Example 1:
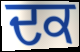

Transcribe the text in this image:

ਦਕ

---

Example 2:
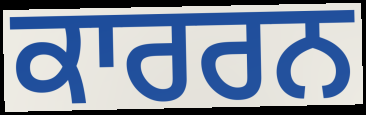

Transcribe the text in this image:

ਕਾਰਰਨ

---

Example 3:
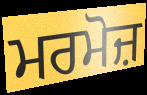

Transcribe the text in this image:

ਮਰਮੋਜ਼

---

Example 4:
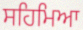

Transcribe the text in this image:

ਸਹਿਮਿਆ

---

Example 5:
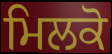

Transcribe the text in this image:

ਮਿਲਕੋ